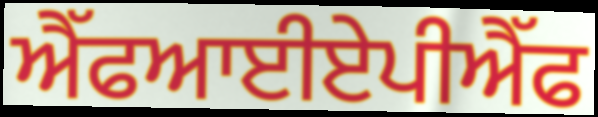
ਐੱਫਆਈਏਪੀਐੱਫ